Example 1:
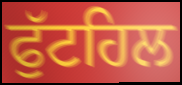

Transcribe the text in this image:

ਫੁੱਟਹਿਲ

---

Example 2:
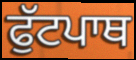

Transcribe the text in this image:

ਫੁੱਟਪਾਥ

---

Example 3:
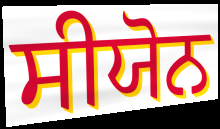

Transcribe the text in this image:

ਸੀਯੋਨ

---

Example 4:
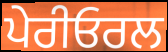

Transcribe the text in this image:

ਪੇਰੀਓਰਲ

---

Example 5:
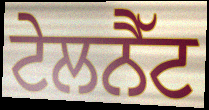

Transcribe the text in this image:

ਟੇਲਨੈੱਟ